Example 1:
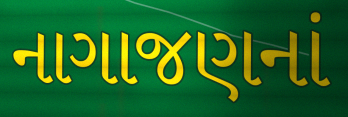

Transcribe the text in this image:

નાગાજણનાં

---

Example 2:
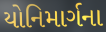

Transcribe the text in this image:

યોનિમાર્ગના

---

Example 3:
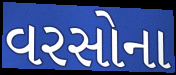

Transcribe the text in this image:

વરસોના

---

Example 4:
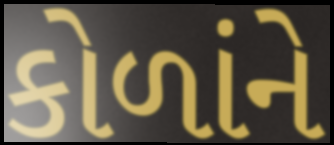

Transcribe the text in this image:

કોળાંને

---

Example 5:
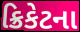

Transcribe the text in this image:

ક્રિકેટના